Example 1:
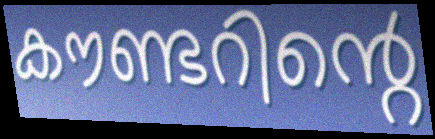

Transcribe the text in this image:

കൗണ്ടറിന്റെ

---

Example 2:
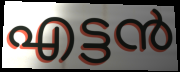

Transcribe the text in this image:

എട്ടൻ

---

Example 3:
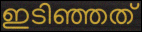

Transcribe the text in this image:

ഇടിഞ്ഞത്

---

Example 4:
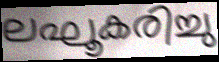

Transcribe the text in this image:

ലഘൂകരിച്ചു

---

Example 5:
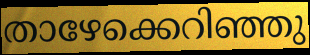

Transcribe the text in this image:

താഴേക്കെറിഞ്ഞു